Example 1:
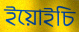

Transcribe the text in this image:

ইয়োইচি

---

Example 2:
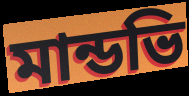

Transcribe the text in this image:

মান্ডভি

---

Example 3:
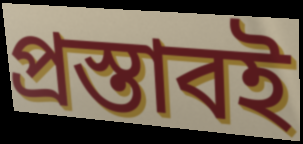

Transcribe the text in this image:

প্রস্তাবই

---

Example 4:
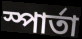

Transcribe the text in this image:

স্পার্তা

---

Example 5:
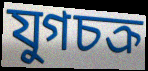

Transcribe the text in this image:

যুগচক্র